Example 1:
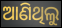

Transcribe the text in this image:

ଆଣିଥିଲୁ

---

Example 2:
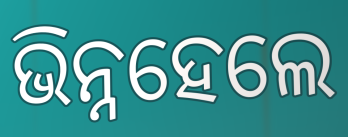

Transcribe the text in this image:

ଭିନ୍ନହେଲେ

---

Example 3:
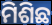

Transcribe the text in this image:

ମିଶିଛ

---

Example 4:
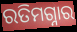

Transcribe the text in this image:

ରତିମଗ୍ନାର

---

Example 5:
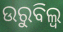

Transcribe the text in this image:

ଉରୁବିଲ୍ୱ